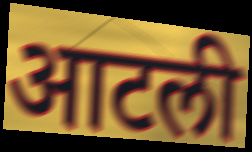
आटली